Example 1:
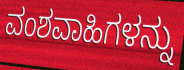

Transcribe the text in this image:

ವಂಶವಾಹಿಗಳನ್ನು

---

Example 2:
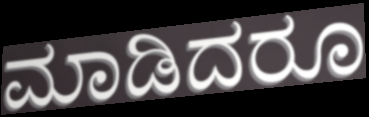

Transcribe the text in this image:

ಮಾಡಿದರೂ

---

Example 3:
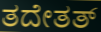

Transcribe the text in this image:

ತದೇತತ್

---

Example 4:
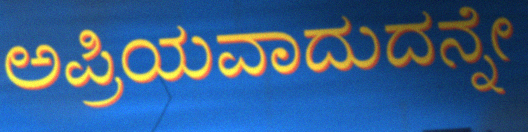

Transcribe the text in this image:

ಅಪ್ರಿಯವಾದುದನ್ನೇ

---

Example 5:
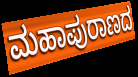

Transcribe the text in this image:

ಮಹಾಪುರಾಣದ